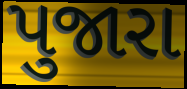
પુજારા